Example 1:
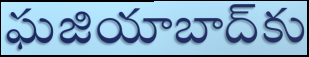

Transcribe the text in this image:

ఘజియాబాద్‌కు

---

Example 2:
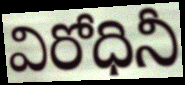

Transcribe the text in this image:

విరోధినీ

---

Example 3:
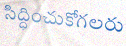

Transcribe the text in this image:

సిద్ధించుకోగలరు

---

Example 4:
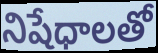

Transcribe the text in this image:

నిషేధాలతో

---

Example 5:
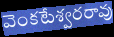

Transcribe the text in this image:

వెంకటేశ్వరరావు